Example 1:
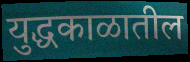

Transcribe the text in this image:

युद्धकाळातील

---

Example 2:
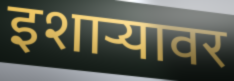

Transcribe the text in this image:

इशार्‍यावर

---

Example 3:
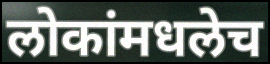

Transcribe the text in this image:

लोकांमधलेच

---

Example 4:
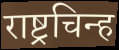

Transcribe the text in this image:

राष्ट्रचिन्ह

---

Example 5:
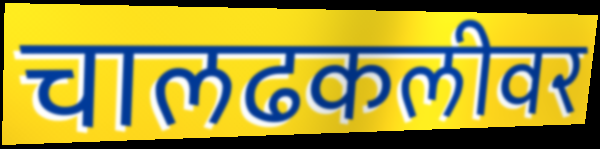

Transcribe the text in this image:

चालढकलीवर